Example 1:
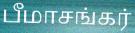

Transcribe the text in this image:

பீமாசங்கர்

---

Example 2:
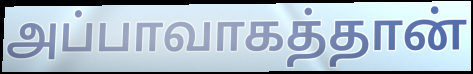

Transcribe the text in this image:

அப்பாவாகத்தான்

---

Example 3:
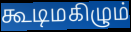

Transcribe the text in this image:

கூடிமகிழும்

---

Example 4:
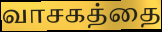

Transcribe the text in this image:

வாசகத்தை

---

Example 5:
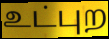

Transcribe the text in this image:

உட்புற